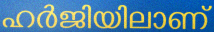
ഹർജിയിലാണ്